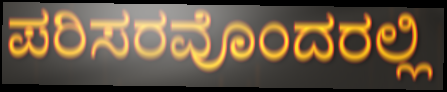
ಪರಿಸರವೊಂದರಲ್ಲಿ